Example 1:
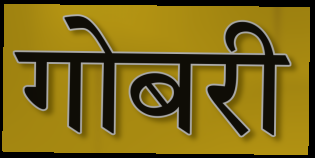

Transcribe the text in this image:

गोबरी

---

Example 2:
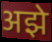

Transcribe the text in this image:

अझे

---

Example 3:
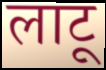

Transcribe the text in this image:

लाटू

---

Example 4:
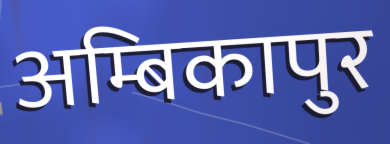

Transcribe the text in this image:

अम्बिकापुर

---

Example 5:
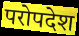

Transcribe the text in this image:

परोपदेश